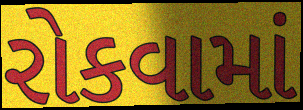
રોકવામાં